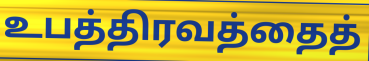
உபத்திரவத்தைத்